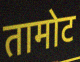
तामोट